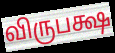
விருபக்ஷ